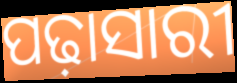
ପଢ଼ାସାରୀ